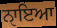
ਨੑਾਇਆ